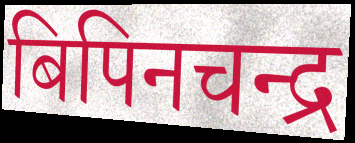
बिपिनचन्द्र